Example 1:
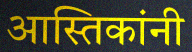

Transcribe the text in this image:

आस्तिकांनी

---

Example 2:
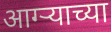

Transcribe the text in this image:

आग्ऱ्याच्या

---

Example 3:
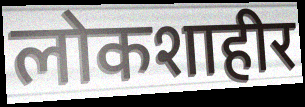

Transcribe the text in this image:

लोकशाहीर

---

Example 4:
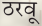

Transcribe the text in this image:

ठरवू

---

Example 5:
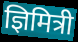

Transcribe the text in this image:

ज्ञिमित्री